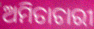
ଅମିତାଚାରୀ